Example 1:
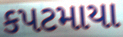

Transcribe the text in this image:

કપટમાયા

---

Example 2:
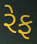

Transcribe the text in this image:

રેફ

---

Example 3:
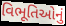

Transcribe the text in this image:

વિભૂતિઓનું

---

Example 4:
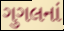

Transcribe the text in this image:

ગુગલનાં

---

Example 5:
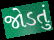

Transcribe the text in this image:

જોડતું